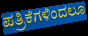
ಪತ್ರಿಕೆಗಳಿಂದಲೂ